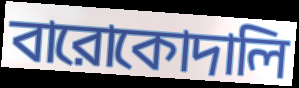
বারোকোদালি